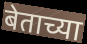
बेताच्या